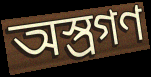
অস্ত্রগণ